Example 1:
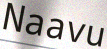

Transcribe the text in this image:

Naavu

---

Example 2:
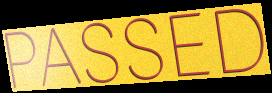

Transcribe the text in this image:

PASSED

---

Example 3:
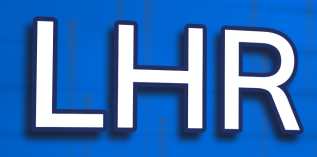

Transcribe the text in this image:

LHR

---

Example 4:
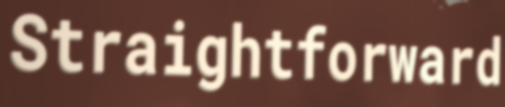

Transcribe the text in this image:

Straightforward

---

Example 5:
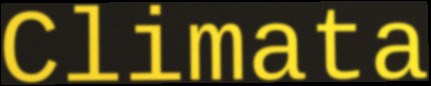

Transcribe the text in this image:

Climata